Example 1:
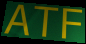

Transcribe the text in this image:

ATF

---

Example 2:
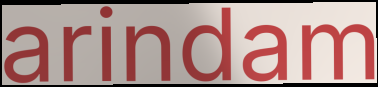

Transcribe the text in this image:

arindam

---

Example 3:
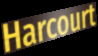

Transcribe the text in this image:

Harcourt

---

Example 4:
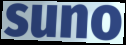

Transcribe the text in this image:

suno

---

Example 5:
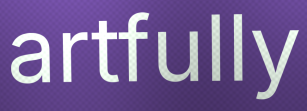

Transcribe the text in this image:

artfully